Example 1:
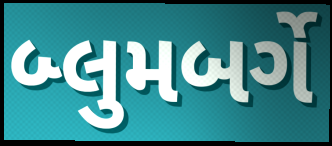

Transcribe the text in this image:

બ્લુમબર્ગે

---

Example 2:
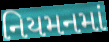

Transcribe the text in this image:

નિયમનમાં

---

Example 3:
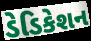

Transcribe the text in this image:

ડેડિકેશન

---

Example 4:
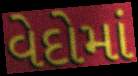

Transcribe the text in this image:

વેદોમાં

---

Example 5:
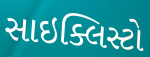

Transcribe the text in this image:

સાઇક્લિસ્ટો